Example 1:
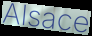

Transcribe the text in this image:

Alsace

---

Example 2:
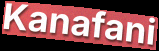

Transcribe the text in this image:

Kanafani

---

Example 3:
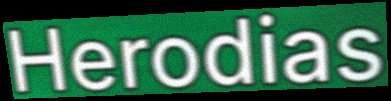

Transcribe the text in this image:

Herodias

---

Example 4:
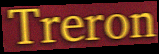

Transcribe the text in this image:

Treron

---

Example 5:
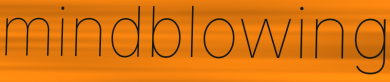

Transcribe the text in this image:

mindblowing